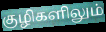
குழிகளிலும்